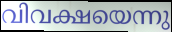
വിവക്ഷയെന്നു